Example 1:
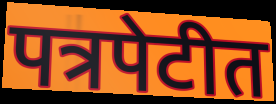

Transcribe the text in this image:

पत्रपेटीत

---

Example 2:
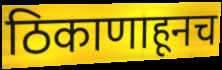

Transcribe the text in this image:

ठिकाणाहूनच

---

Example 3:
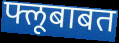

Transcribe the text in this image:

फ्लूबाबत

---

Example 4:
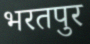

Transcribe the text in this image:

भरतपुर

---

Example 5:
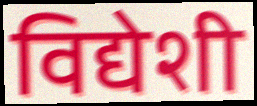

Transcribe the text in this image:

विद्येशी